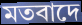
মতবাদে